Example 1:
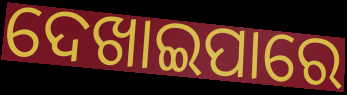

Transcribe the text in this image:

ଦେଖାଇପାରେ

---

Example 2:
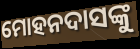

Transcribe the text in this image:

ମୋହନଦାସଙ୍କୁ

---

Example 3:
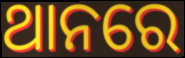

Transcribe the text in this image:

ଥାନରେ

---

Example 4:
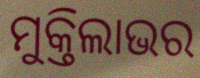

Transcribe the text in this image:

ମୁକ୍ତିଲାଭର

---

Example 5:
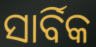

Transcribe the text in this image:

ସାର୍ବିକ